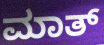
ಮಾತ್